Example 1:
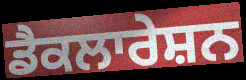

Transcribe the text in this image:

ਡੈਕਲਾਰੇਸ਼ਨ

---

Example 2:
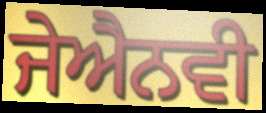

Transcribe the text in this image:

ਜੇਐਨਵੀ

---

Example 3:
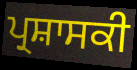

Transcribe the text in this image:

ਪ੍ਰਸ਼ਾਸਕੀ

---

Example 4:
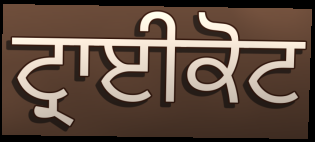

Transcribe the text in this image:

ਟ੍ਰਾਈਕੋਟ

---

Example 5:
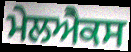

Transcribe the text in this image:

ਮੇਲਐਕਸ